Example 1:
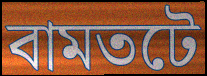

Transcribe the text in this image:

বামতটে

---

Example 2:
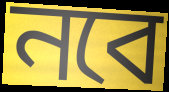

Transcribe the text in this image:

নবে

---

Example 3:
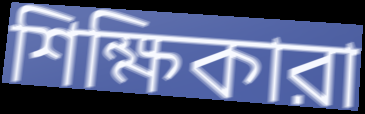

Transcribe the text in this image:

শিক্ষিকারা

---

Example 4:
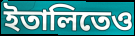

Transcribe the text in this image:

ইতালিতেও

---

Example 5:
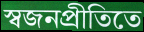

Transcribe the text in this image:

স্বজনপ্রীতিতে